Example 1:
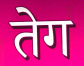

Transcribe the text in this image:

तेग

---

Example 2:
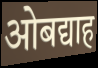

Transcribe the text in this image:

ओबद्याह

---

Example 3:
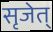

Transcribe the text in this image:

सृजेत्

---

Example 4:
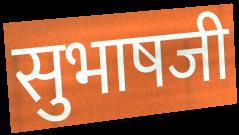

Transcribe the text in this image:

सुभाषजी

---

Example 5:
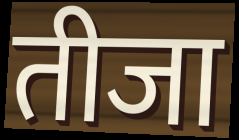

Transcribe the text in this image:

तीजा